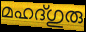
മഹദ്ഗുരു